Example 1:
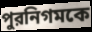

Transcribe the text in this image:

পুরনিগমকে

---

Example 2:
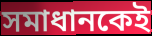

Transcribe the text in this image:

সমাধানকেই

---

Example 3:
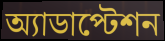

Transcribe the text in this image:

অ্যাডাপ্টেশন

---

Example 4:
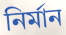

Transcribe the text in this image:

নির্মান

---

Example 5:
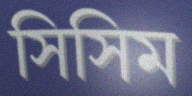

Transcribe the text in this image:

সিসিম